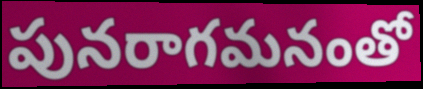
పునరాగమనంతో